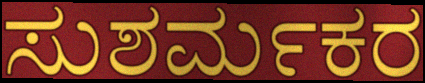
ಸುಶರ್ಮಕರ